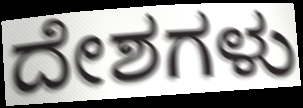
ದೇಶಗಳು